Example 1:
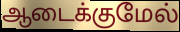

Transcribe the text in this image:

ஆடைக்குமேல்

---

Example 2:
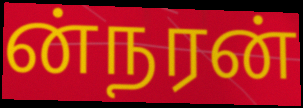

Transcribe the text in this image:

ன்நரன்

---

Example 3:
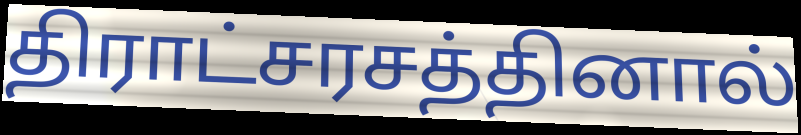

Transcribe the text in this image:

திராட்சரசத்தினால்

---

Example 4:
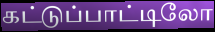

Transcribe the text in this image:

கட்டுப்பாட்டிலோ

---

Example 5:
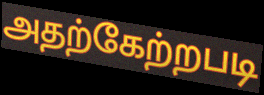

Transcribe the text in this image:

அதற்கேற்றபடி